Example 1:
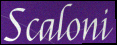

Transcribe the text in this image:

Scaloni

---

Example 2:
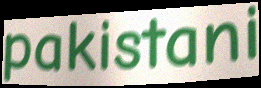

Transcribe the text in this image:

pakistani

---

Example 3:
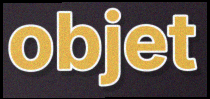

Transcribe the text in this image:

objet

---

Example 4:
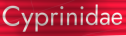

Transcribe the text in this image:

Cyprinidae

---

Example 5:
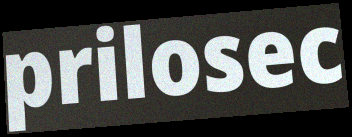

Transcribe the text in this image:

prilosec